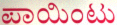
ಪಾಯಿಂಟು